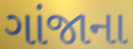
ગાંજાના